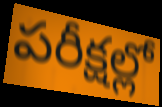
పరీక్షల్లో